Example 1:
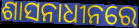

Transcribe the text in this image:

ଶାସନାଧୀନରେ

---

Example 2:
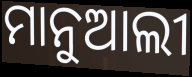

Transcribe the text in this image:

ମାନୁଆଲୀ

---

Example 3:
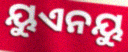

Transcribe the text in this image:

ୟୁଏନୟୁ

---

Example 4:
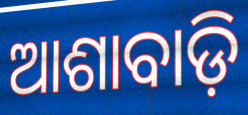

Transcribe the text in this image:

ଆଶାବାଡ଼ି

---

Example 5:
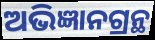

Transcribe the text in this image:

ଅଭିଜ୍ଞାନଗ୍ରନ୍ଥ